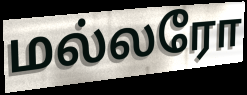
மல்லரோ